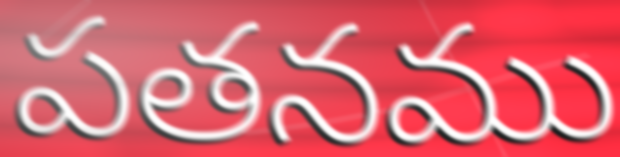
పతనము